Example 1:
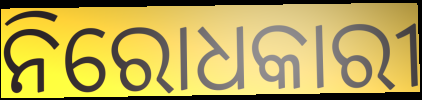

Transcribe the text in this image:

ନିରୋଧକାରୀ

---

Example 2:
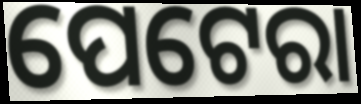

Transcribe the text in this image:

ପେଟେରା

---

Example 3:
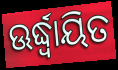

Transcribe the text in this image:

ଊର୍ଦ୍ଧ୍ୱାୟିତ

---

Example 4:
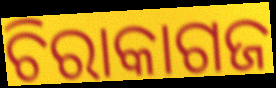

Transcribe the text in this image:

ଚିରାକାଗଜ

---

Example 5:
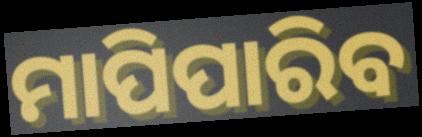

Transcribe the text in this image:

ମାପିପାରିବ